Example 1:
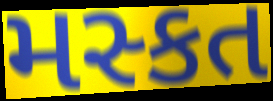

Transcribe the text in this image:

મસ્કત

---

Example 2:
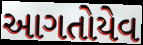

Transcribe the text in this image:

આગતોયેવ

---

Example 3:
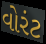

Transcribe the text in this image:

વોરંટ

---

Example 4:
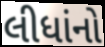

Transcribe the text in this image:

લીધાંનો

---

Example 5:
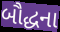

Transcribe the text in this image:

બૌદ્ધના